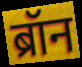
ब्रॉन